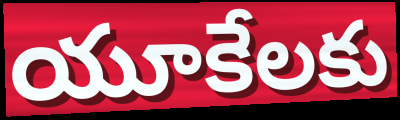
యూకేలకు